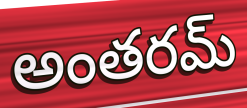
అంతరమ్